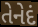
તેનેદં